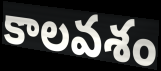
కాలవశం